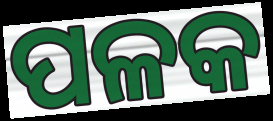
ପଳକ